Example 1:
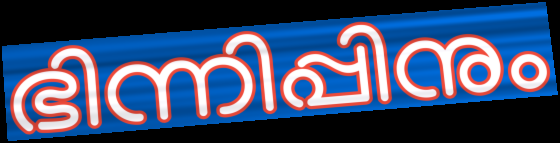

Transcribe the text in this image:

ഭിന്നിപ്പിനും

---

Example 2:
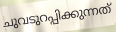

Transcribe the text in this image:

ചുവടുറപ്പിക്കുന്നത്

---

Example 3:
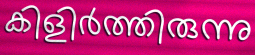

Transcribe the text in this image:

കിളിർത്തിരുന്നു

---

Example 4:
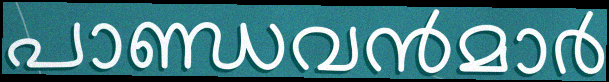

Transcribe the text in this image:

പാണ്ഡവൻമാർ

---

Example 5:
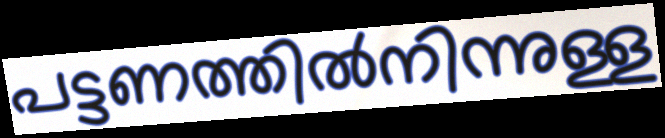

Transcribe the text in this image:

പട്ടണത്തിൽനിന്നുള്ള